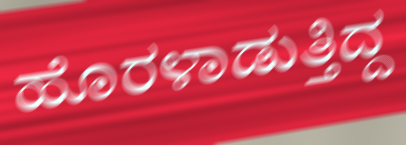
ಹೊರಳಾಡುತ್ತಿದ್ದ